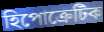
হিপোক্রেটিক